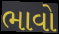
ભાવો